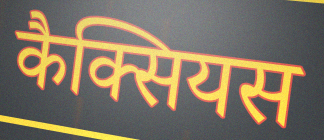
कैक्सियस